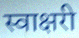
स्वाक्षरी